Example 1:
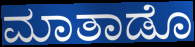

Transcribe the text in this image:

ಮಾತಾಡೊ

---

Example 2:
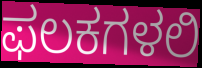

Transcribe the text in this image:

ಫಲಕಗಳಲಿ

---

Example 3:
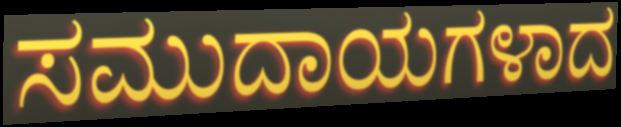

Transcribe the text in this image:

ಸಮುದಾಯಗಳಾದ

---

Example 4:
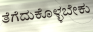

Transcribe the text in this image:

ತೆಗೆದುಕೊಳ್ಳಬೇಕು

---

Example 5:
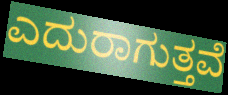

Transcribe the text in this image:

ಎದುರಾಗುತ್ತವೆ